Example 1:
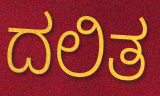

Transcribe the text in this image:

ದಲಿತ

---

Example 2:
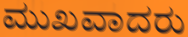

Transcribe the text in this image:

ಮುಖವಾದರು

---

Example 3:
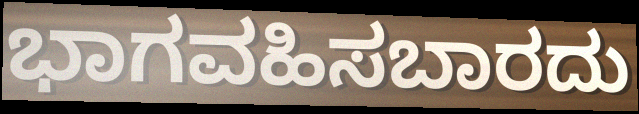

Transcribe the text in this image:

ಭಾಗವಹಿಸಬಾರದು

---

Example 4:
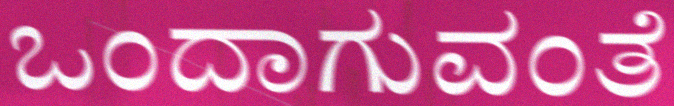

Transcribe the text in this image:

ಒಂದಾಗುವಂತೆ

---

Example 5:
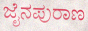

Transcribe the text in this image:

ಜೈನಪುರಾಣ